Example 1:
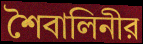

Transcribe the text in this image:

শৈবালিনীর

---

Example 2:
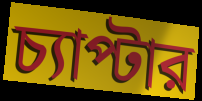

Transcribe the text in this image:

চ্যাপ্টার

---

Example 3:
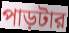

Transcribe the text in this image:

পাড়টার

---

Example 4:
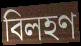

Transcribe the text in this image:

বিলহণ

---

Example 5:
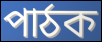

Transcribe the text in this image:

পাঠক